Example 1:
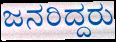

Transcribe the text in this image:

ಜನರಿದ್ದರು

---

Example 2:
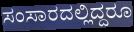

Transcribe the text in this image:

ಸಂಸಾರದಲ್ಲಿದ್ದರೂ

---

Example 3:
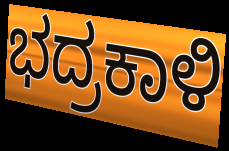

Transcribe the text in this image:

ಭದ್ರಕಾಳಿ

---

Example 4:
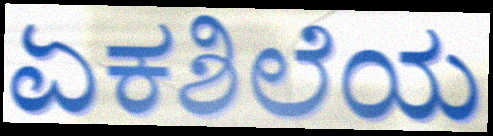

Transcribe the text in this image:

ಏಕಶಿಲೆಯ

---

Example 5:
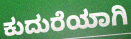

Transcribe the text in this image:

ಕುದುರೆಯಾಗಿ